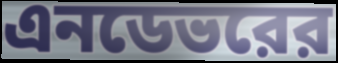
এনডেভরের